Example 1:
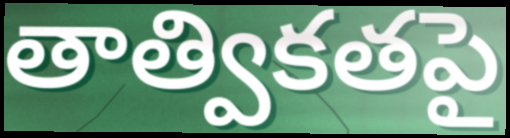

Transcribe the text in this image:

తాత్వికతపై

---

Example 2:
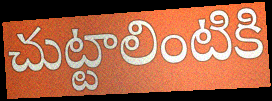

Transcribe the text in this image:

చుట్టాలింటికి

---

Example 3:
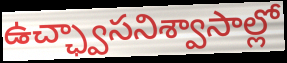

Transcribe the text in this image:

ఉచ్ఛ్వాసనిశ్వాసాల్లో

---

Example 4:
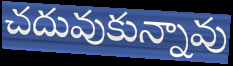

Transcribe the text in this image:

చదువుకున్నావు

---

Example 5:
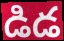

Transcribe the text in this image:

డిడ